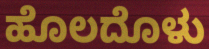
ಹೊಲದೊಳು